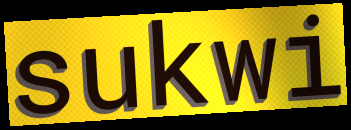
sukwi